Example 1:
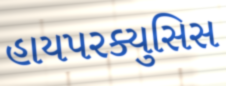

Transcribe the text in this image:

હાયપરક્યુસિસ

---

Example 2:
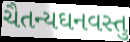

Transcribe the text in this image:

ચૈતન્યઘનવસ્તુ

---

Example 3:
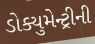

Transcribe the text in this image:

ડોક્યુમેન્ટ્રીની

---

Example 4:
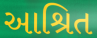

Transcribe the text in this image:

આશ્રિત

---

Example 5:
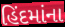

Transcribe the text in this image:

હિંદમાંના